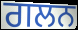
ਗਲਨ